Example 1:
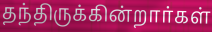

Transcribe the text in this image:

தந்திருக்கின்றார்கள்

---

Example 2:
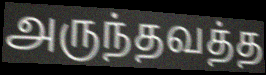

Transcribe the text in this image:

அருந்தவத்த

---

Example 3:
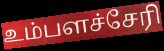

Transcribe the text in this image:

உம்பளச்சேரி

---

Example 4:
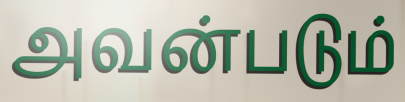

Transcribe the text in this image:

அவன்படும்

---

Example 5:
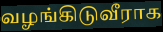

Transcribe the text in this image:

வழங்கிடுவீராக